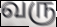
வரு